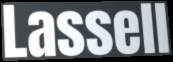
Lassell